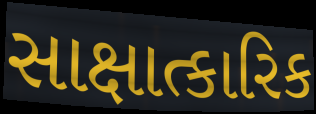
સાક્ષાત્કારિક